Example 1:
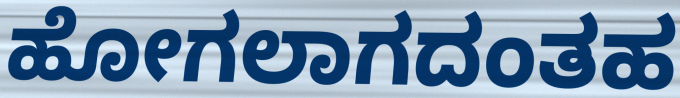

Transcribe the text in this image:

ಹೋಗಲಾಗದಂತಹ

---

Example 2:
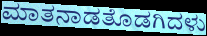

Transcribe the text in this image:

ಮಾತನಾಡತೊಡಗಿದಳು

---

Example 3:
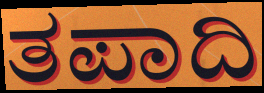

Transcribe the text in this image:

ತಪಾದಿ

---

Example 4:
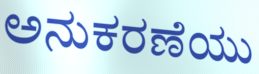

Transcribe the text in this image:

ಅನುಕರಣೆಯು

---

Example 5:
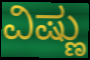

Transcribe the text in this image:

ವಿಷ್ಣು